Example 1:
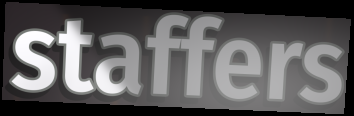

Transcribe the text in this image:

staffers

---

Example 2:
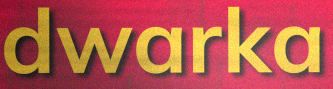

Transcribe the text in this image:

dwarka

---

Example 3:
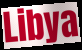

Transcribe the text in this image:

Libya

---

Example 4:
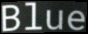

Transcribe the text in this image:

Blue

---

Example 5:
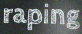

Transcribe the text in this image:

raping